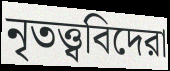
নৃতত্ত্ববিদেরা